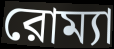
রোম্যা